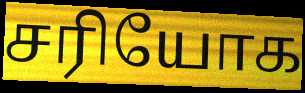
சரியோக